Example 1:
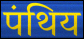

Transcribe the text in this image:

पंथिय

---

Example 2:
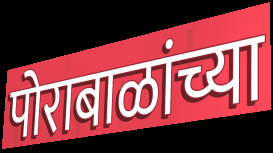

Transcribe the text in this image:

पोराबाळांच्या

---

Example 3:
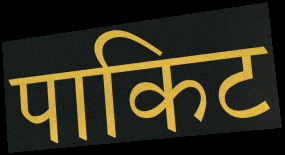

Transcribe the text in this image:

पाकिट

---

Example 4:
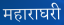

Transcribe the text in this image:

महाराघरी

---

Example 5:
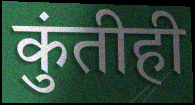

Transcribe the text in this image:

कुंतीही